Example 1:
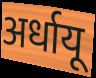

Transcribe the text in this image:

अर्धायू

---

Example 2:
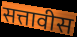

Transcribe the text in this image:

सत्तावीस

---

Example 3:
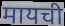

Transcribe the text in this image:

मायची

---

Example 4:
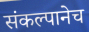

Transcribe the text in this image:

संकल्पानेच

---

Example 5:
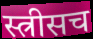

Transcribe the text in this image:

स्त्रीसच